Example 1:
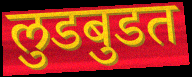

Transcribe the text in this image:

लुडबुडत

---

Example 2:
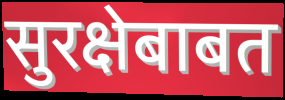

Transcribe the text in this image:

सुरक्षेबाबत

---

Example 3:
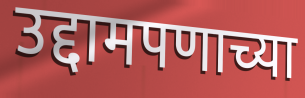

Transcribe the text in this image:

उद्दामपणाच्या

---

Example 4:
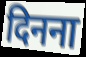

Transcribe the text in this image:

दिनना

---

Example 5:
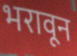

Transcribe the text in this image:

भरावून